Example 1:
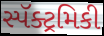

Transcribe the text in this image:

સ્પૅક્ટ્રમિકી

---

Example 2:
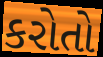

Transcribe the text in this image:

કરોતો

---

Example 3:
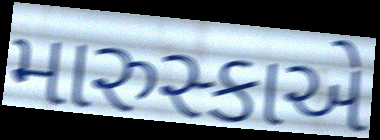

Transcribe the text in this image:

મારુસ્કાએ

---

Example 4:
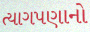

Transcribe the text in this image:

ત્યાગપણાનો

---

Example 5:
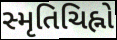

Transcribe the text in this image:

સ્મૃતિચિહ્નો